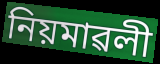
নিয়মাৱলী